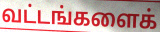
வட்டங்களைக்